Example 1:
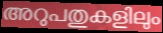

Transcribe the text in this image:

അറുപതുകളിലും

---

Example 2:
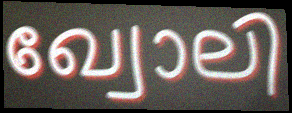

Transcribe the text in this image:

ഖ്വോലി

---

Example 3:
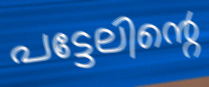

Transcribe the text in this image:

പട്ടേലിന്റെ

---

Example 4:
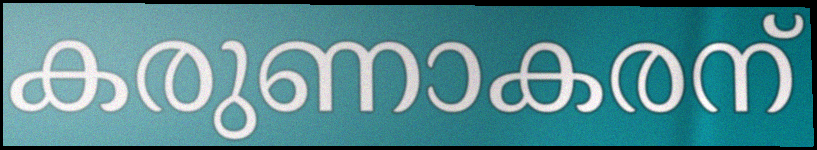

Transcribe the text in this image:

കരുണാകരന്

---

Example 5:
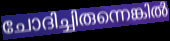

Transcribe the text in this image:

ചോദിച്ചിരുന്നെങ്കിൽ